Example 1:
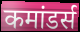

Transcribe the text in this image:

कमांडर्स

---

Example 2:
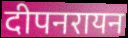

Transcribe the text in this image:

दीपनरायन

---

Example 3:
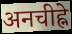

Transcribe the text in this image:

अनचीह्ने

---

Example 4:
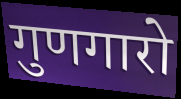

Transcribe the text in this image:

गुणगारो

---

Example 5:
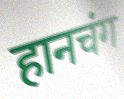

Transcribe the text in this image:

हानचंग